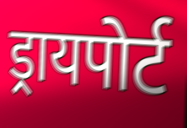
ड्रायपोर्ट